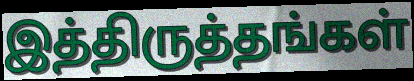
இத்திருத்தங்கள்